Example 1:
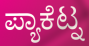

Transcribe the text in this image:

ಪ್ಯಾಕೆಟ್ನ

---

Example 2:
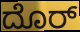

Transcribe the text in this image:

ದೊರ್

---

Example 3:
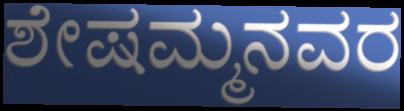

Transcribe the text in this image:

ಶೇಷಮ್ಮನವರ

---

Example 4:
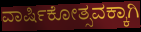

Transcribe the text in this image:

ವಾರ್ಷಿಕೋತ್ಸವಕ್ಕಾಗಿ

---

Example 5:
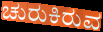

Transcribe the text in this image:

ಚುರುಕಿರುವ